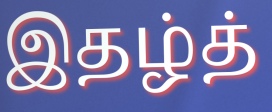
இதழ்த்